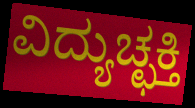
ವಿದ್ಯುಚ್ಛಕ್ತಿ